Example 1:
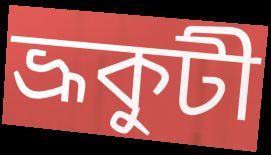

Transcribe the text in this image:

ভ্রূকুটী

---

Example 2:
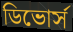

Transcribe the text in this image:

ডিভোর্স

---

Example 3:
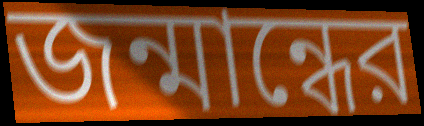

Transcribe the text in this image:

জন্মান্ধের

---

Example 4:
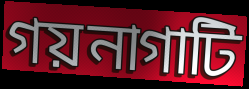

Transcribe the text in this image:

গয়নাগাটি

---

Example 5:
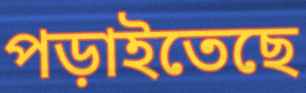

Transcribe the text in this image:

পড়াইতেছে